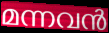
മന്നവൻ